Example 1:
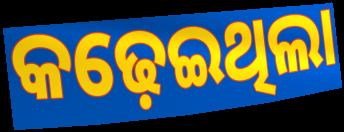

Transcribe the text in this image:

କଢ଼େଇଥିଲା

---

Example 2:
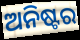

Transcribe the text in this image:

ଅନିଷ୍ଟର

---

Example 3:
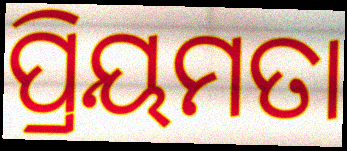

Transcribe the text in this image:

ପ୍ରିୟମତା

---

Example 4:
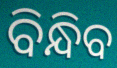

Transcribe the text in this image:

ବିନ୍ଧିବ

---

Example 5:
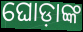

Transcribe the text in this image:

ଘୋଡ଼ାଙ୍କ